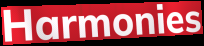
Harmonies